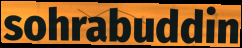
sohrabuddin